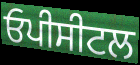
ਓਪੀਸੀਟਲ